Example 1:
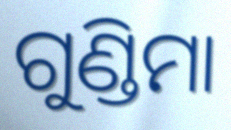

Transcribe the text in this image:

ଗୁଣ୍ଡିମା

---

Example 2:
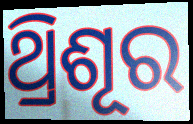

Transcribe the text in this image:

ଥ୍ରିଶୂର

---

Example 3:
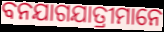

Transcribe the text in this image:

ବନଯାଗଯାତ୍ରୀମାନେ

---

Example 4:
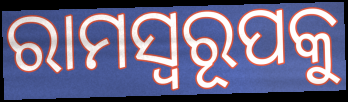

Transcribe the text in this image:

ରାମସ୍ୱରୂପକୁ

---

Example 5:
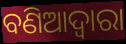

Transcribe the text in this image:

ବଣିଆଦ୍ୱାରା